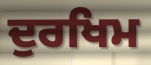
ਦੁਰਖਿਮ